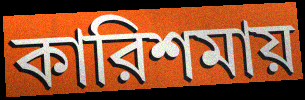
কারিশমায়